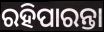
ରହିପାରନ୍ତା